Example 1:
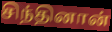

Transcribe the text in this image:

சிந்தினான்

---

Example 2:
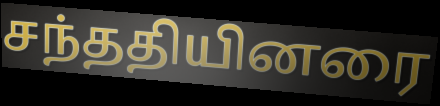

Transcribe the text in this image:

சந்ததியினரை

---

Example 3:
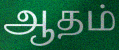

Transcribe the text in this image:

ஆதம்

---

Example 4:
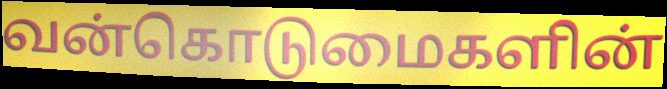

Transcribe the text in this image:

வன்கொடுமைகளின்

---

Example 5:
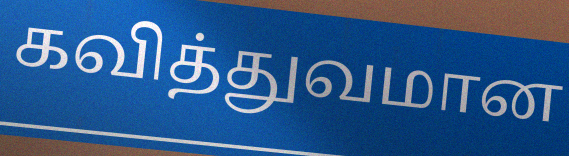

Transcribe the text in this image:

கவித்துவமான